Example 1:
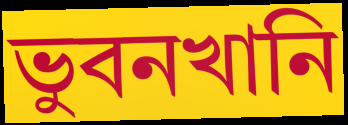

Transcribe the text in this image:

ভুবনখানি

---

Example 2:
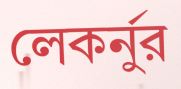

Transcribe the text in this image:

লেকর্নুর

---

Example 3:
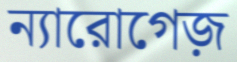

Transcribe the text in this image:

ন্যারোগেজ়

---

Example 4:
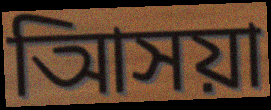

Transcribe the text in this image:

আিসয়া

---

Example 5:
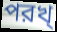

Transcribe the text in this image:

পরখ্